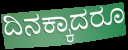
ದಿನಕ್ಕಾದರೂ